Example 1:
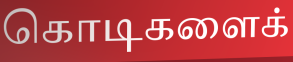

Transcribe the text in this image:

கொடிகளைக்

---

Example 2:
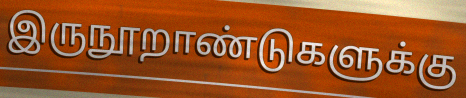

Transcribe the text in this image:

இருநூறாண்டுகளுக்கு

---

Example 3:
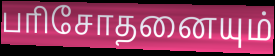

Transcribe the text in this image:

பரிசோதனையும்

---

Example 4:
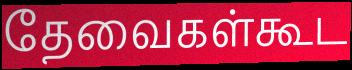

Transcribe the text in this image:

தேவைகள்கூட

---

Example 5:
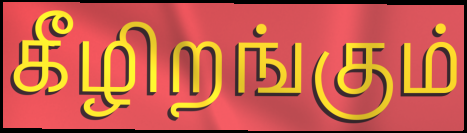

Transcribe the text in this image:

கீழிறங்கும்